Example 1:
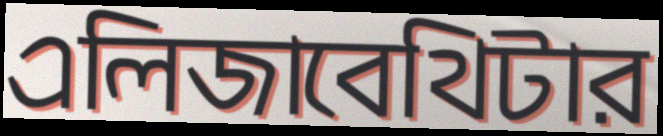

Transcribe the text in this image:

এলিজাবেথিটার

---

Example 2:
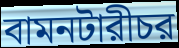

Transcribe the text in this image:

বামনটারীচর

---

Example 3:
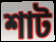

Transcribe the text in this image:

শাট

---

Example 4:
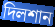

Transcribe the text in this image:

দিলশান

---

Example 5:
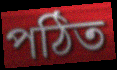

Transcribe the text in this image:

পঠিত